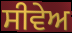
ਸੀਵੇਅ